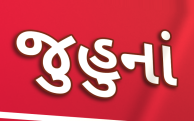
જુહુનાં